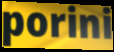
porini